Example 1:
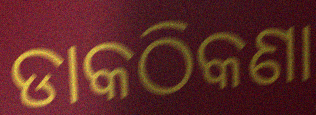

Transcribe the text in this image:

ଡାକଠିକଣା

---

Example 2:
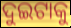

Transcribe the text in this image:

ଦୁଇଟାକୁ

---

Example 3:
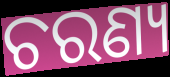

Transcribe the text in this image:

ଚରଣ୍ୟ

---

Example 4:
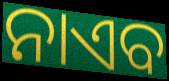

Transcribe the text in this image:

ନାଏବ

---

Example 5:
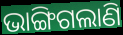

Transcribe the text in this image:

ଭାଙ୍ଗିଗଲାଣି